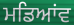
ਮਡਿਆਂਵ